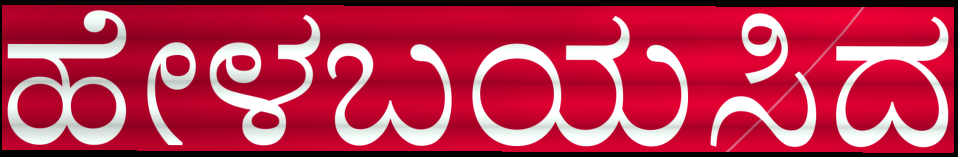
ಹೇಳಬಯಸಿದ